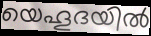
യെഹൂദയിൽ